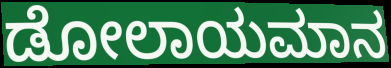
ಡೋಲಾಯಮಾನ